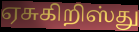
ஏசுகிறிஸ்து